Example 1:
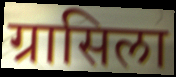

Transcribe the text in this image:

ग्रासिला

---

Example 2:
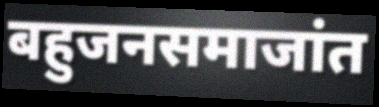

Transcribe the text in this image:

बहुजनसमाजांत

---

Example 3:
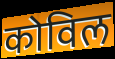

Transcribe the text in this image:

कोविल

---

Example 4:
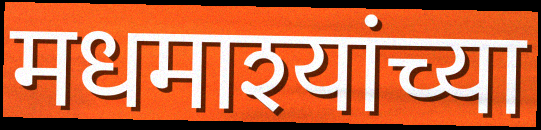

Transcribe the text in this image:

मधमाश्‍यांच्या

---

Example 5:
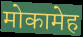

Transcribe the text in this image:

मोकामेह